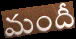
మందీ